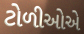
ટોળીઓએ